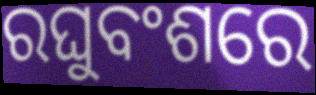
ରଘୁବଂଶରେ